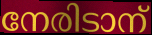
നേരിടാന്